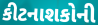
કીટનાશકોની